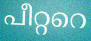
പീറ്ററെ